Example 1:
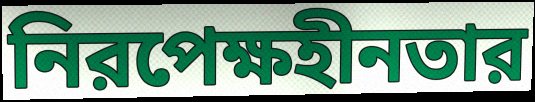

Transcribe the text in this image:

নিরপেক্ষহীনতার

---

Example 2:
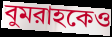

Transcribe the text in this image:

বুমরাহকেও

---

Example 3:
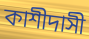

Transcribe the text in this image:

কাশীদাসী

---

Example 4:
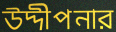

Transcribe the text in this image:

উদ্দীপনার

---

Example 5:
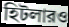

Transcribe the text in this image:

হিটলারও